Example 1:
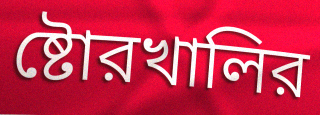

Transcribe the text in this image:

ষ্টোরখালির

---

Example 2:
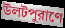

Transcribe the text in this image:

উলটপুরাণে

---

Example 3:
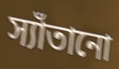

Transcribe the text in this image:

স্যাঁতানো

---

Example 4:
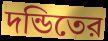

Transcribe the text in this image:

দন্ডিতের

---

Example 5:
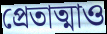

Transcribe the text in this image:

প্রেতাত্মাও